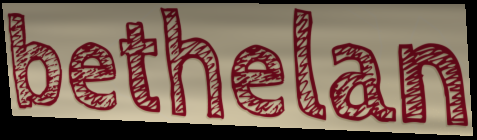
bethelan